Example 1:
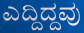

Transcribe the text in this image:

ಎದ್ದಿದ್ದವು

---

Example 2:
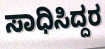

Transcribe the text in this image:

ಸಾಧಿಸಿದ್ದರ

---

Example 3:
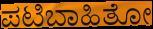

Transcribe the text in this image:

ಪಟಿಬಾಹಿತೋ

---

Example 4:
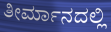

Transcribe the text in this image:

ತೀರ್ಮಾನದಲ್ಲಿ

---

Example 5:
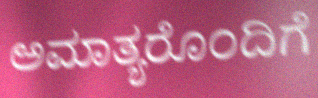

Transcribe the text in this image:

ಅಮಾತ್ಯರೊಂದಿಗೆ